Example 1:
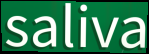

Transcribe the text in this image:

saliva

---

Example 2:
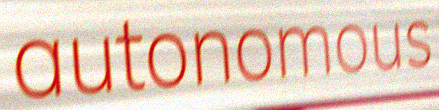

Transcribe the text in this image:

autonomous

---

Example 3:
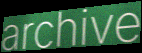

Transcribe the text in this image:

archive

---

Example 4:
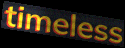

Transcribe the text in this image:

timeless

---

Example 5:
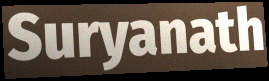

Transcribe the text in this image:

Suryanath